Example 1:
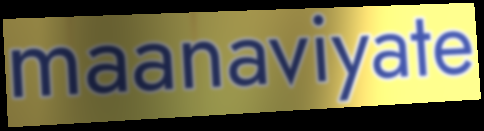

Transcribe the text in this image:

maanaviyate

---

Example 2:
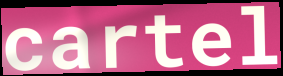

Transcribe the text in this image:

cartel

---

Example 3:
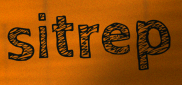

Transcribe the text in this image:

sitrep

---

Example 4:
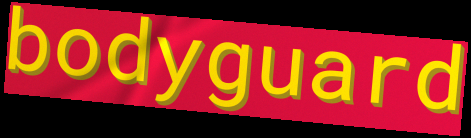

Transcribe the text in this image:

bodyguard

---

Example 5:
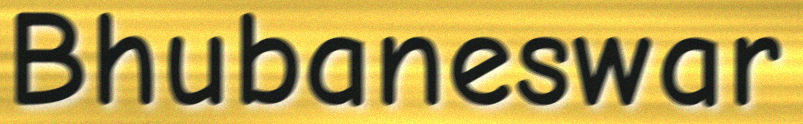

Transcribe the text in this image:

Bhubaneswar